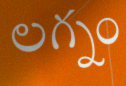
లగ్నం